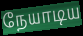
நேயாடிய